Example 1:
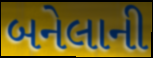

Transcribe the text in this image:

બનેલાની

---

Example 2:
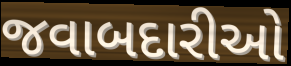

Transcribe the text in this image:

જવાબદારીઓ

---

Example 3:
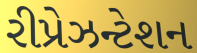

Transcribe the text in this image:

રીપ્રેઝન્ટેશન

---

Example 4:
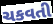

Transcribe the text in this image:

ચકવતી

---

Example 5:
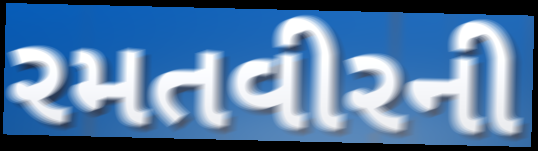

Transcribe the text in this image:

રમતવીરની